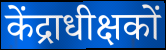
केंद्राधीक्षकों